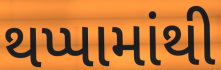
થપ્પામાંથી